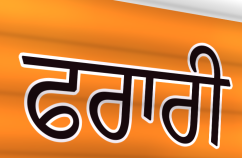
ਫਰਾਰੀ